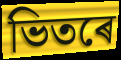
ভিতৰে